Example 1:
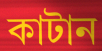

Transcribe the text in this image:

কাটান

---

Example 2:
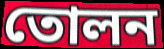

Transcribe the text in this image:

তোলন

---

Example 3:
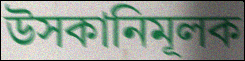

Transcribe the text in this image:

উসকানিমূলক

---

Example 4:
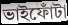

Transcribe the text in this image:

ভাইফোঁটা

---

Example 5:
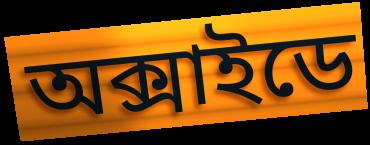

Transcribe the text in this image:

অক্সাইডে